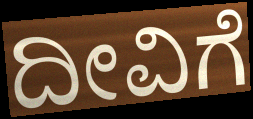
ದೀವಿಗೆ